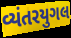
વ્યંતરયુગલ